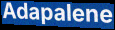
Adapalene